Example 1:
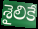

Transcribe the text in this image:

శైలికే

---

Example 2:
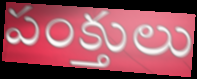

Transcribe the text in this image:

పంక్తులు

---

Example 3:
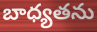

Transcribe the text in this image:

బాధ్యతను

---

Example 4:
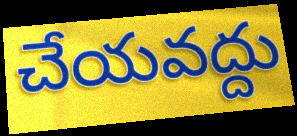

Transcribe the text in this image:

చేయవద్దు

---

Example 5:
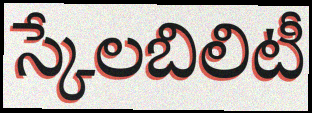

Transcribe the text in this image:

స్కేలబిలిటీ